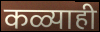
कळ्याही